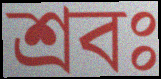
শ্রবঃ